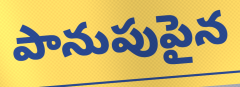
పానుపుపైన